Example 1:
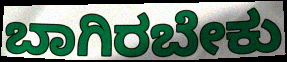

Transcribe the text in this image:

ಬಾಗಿರಬೇಕು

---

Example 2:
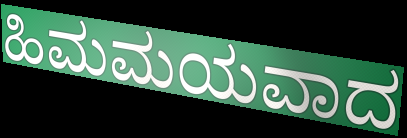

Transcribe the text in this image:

ಹಿಮಮಯವಾದ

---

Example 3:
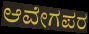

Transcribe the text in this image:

ಆವೇಗಪರ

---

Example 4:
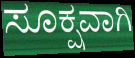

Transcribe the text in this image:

ಸೂಕ್ಷವಾಗಿ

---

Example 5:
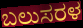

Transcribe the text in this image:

ಬಲುಸರಳ